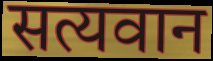
सत्यवान